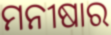
ମନୀଷାର